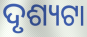
ଦୃଶ୍ୟଟା